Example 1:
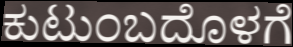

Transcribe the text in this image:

ಕುಟುಂಬದೊಳಗೆ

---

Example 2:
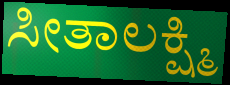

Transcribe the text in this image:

ಸೀತಾಲಕ್ಷ್ಮಿ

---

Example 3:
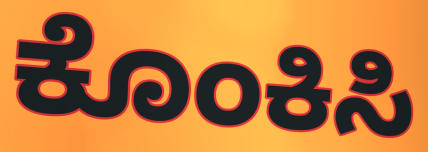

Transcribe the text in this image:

ಕೊಂಕಿಸಿ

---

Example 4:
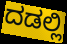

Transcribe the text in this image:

ದಡಲ್ಲಿ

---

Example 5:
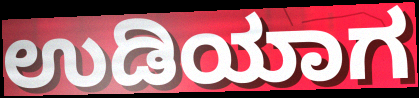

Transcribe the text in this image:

ಉಡಿಯಾಗ